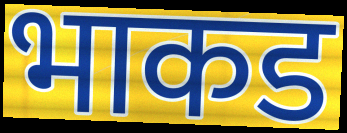
भाकड